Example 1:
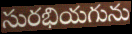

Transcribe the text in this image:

సురభియగును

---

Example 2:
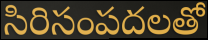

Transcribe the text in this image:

సిరిసంపదలతో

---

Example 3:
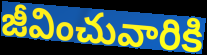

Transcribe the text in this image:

జీవించువారికి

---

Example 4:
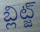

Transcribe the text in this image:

బ్లిట్జ్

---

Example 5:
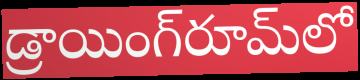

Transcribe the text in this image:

డ్రాయింగ్‌రూమ్‌లో